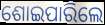
ଶୋଇପାରିଲେ